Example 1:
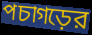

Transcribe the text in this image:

পচাগড়ের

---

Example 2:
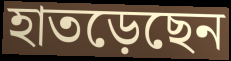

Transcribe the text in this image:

হাতড়েছেন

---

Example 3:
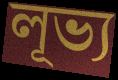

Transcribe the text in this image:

লূভ্য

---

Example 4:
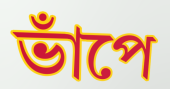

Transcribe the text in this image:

ভাঁপে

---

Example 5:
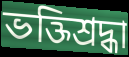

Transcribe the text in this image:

ভক্তিশ্রদ্ধা